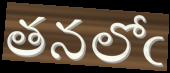
తనలోఁ